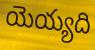
యెయ్యది